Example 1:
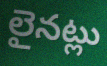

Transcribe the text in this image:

లైనట్లు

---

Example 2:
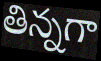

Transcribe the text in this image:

తిన్నగా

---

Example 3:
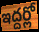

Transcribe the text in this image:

ఇద్దర్లో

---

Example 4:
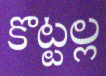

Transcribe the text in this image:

కొట్టల్ల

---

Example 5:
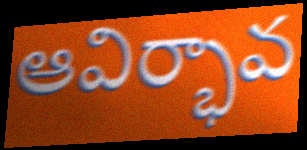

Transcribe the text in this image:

ఆవిర్భావ